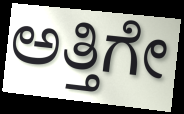
ಅತ್ತಿಗೇ